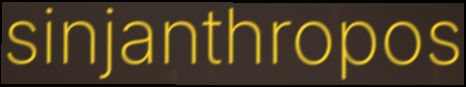
sinjanthropos